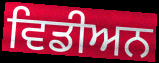
ਵਿਡੀਅਨ